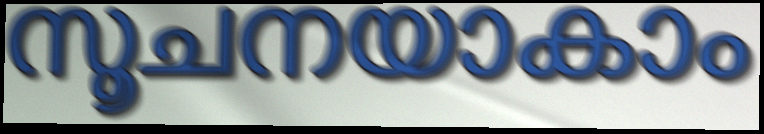
സൂചനയാകാം